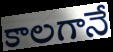
కాలగానే